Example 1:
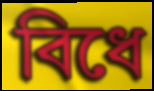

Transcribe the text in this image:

বিধে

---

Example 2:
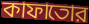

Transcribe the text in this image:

কাফাতোর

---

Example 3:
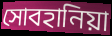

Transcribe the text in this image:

সোবহানিয়া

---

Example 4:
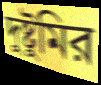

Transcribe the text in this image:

দুষ্টুমির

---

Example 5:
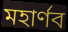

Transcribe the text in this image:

মহার্ণব